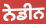
ਨੇਡੀਨ